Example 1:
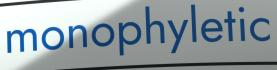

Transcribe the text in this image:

monophyletic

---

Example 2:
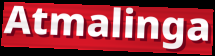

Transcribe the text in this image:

Atmalinga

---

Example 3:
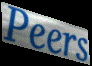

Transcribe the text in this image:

Peers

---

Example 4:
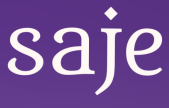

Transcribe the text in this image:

saje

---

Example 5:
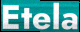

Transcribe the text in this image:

Etela